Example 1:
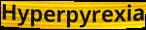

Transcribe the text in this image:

Hyperpyrexia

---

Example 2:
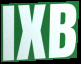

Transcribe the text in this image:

IXB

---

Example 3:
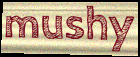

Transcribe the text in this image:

mushy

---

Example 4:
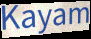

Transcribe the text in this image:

Kayam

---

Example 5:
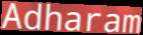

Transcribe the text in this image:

Adharam